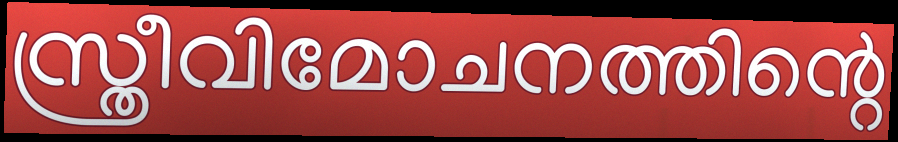
സ്ത്രീവിമോചനത്തിന്റെ